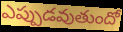
ఎప్పుడవుతుందో